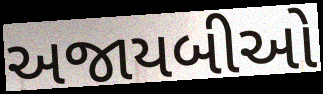
અજાયબીઓ